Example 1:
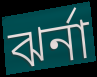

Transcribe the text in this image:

ঝর্না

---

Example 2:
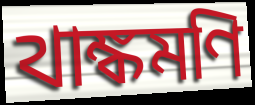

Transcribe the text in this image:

থাঙ্কমণি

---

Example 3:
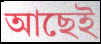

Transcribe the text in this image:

আছেই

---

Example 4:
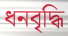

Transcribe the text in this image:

ধনবৃদ্ধি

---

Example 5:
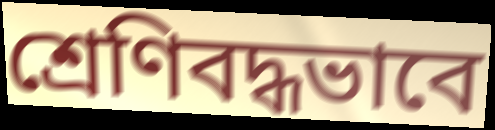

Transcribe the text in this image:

শ্রেণিবদ্ধভাবে